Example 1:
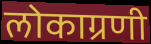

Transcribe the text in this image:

लोकाग्रणी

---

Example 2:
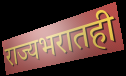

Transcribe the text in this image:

राज्यभरातही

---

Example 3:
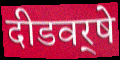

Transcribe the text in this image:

दीडवर्षे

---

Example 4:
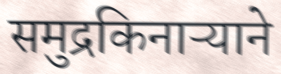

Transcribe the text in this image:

समुद्रकिनाऱ्याने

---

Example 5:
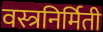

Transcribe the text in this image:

वस्त्रनिर्मिती